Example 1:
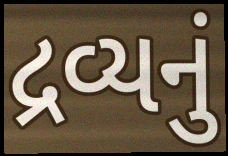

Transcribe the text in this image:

દ્રવ્યનું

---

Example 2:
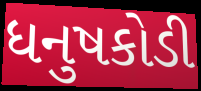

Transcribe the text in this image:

ધનુષકોડી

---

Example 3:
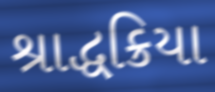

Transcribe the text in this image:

શ્રાદ્ધક્રિયા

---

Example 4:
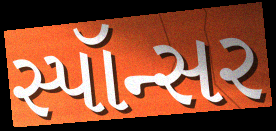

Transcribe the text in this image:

સ્પૉન્સર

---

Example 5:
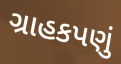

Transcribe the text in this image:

ગ્રાહકપણું